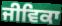
ਜੀਵਿਕਾ